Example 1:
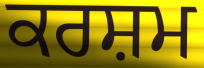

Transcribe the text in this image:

ਕਰਸ਼ਮ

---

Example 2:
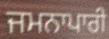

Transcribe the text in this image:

ਜਮਨਾਪਾਰੀ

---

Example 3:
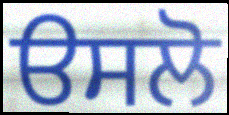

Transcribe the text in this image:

ੳਸਲੋ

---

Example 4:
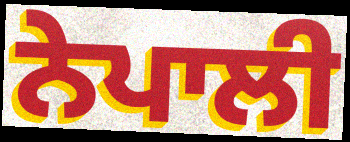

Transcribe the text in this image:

ਨੇਪਾਲੀ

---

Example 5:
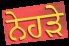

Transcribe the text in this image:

ਨੇਹੜੇ